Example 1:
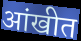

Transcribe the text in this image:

आंखीत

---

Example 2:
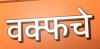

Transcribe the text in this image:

वक्फचे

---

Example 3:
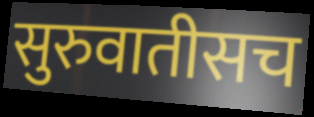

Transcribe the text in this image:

सुरुवातीसच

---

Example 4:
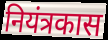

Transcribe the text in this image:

नियंत्रकास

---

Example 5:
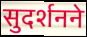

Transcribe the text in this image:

सुदर्शनने